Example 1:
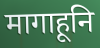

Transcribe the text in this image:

मागाहूनि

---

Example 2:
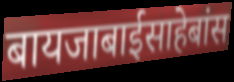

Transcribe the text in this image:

बायजाबाईसाहेबांस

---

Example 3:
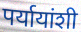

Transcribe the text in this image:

पर्यायांशी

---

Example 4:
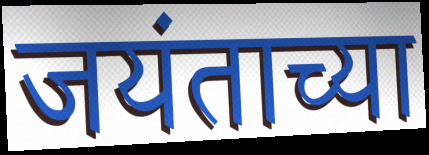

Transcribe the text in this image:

जयंताच्या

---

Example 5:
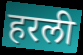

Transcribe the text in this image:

हरली